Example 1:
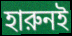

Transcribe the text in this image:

হারুনই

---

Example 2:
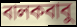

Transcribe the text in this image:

বালকবাবু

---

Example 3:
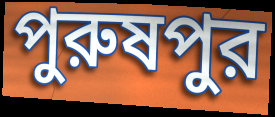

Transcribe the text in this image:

পুরুষপুর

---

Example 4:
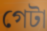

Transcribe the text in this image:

গেটা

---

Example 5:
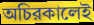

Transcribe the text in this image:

অচিরকালেই